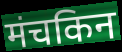
मंचकिन